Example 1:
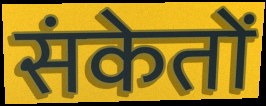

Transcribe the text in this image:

संकेतों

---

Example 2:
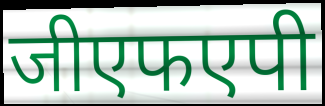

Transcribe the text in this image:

जीएफएपी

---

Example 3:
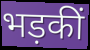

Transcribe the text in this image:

भड़कीं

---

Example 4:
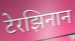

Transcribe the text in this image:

टेरझिनान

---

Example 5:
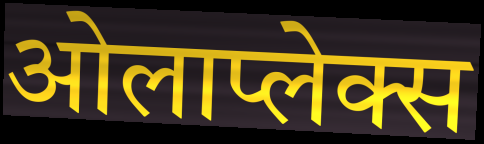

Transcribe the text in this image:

ओलाप्लेक्स